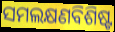
ସମଲକ୍ଷଣବିଶିଷ୍ଟ